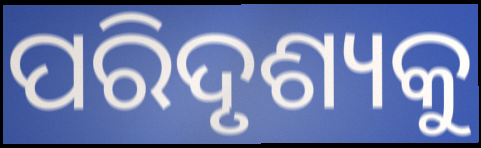
ପରିଦୃଶ୍ୟକୁ